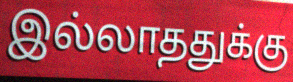
இல்லாததுக்கு